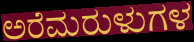
ಅರೆಮರುಳುಗಳ